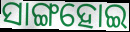
ସାଙ୍ଗହୋଇ